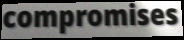
compromises